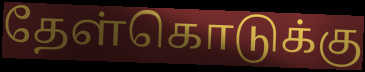
தேள்கொடுக்கு